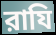
রাযি